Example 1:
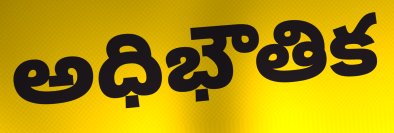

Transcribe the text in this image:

అధిభౌతిక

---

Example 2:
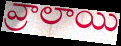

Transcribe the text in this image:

వ్రాలాయి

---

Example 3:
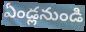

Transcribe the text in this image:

ఏండ్లనుండి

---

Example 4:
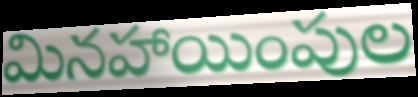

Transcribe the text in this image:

మినహాయింపుల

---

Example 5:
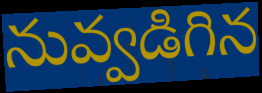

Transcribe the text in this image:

నువ్వడిగిన